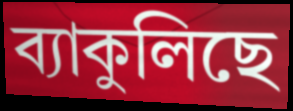
ব্যাকুলিছে